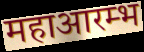
महाआरम्भ